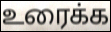
உரைக்க